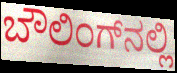
ಬೌಲಿಂಗ್‌ನಲ್ಲಿ